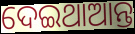
ଦେଇଥାଆନ୍ତ